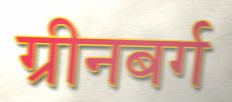
ग्रीनबर्ग